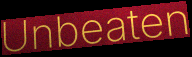
Unbeaten